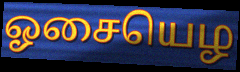
ஓசையெழ